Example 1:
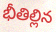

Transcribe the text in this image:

భీతిల్లిన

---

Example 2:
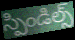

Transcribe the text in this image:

స్పిండిల్స్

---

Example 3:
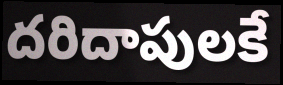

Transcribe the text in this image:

దరిదాపులకే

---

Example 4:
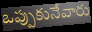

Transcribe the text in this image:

ఒప్పుకునేవారు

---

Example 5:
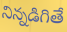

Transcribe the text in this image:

నిన్నడిగితే